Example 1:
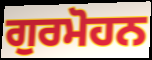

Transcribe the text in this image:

ਗੁਰਮੋਹਨ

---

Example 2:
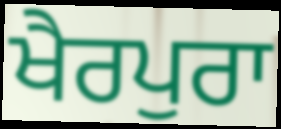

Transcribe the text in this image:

ਖੈਰਪੁਰਾ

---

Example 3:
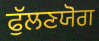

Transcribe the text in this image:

ਫੁੱਲਣਯੋਗ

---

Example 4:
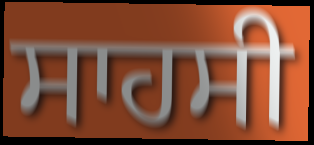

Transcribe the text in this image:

ਸਾਹਸੀ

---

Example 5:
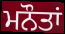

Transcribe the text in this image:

ਮਨੌਤਾਂ